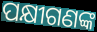
ପକ୍ଷୀଗଣଙ୍କ